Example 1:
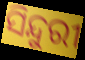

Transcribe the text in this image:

ସିନ୍ଦୁରୀ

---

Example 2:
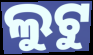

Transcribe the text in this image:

ଲୁଟୁ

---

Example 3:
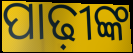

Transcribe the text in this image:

ପାଢ଼ୀଙ୍କ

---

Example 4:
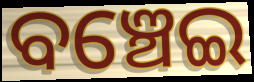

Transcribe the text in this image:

ବଞ୍ଚେଇ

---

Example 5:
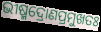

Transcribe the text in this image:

ଭୀଷ୍ମଦ୍ରୋଣପ୍ରମୁଖତଃ